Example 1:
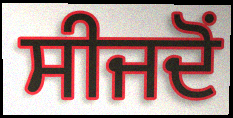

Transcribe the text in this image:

ਸੀਜਦੋਂ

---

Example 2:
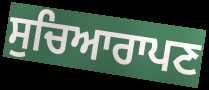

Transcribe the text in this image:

ਸੁਚਿਆਰਾਪਣ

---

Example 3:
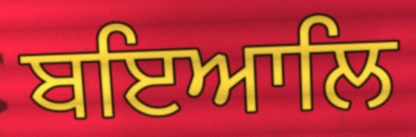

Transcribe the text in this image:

ਬਇਆਲਿ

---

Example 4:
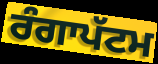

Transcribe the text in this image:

ਰੰਗਾਪੱਟਮ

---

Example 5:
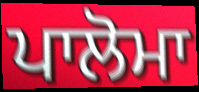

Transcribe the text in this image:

ਪਾਲੋਮਾ